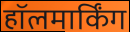
हॉलमार्किंग